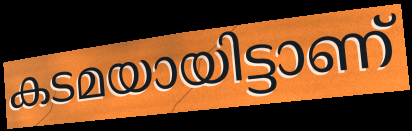
കടമയായിട്ടാണ്